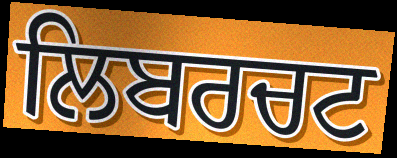
ਲਿਬਰਚਟ